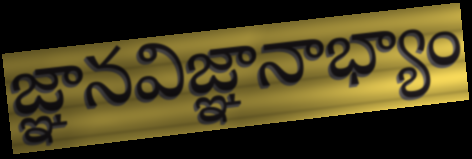
జ్ఞానవిజ్ఞానాభ్యాం